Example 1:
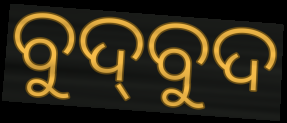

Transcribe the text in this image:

ବୁଦ୍‍ବୁଦ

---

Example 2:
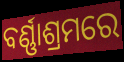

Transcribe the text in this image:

ବର୍ଣ୍ଣାଶ୍ରମରେ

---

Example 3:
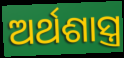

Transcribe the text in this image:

ଅର୍ଥଶାସ୍ତ୍ର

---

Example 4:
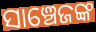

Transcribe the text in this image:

ସାଞ୍ଚେଜଙ୍କ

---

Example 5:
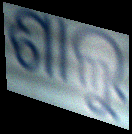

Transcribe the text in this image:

ଶାଲୁ